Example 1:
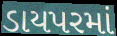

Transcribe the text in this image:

ડાયપરમાં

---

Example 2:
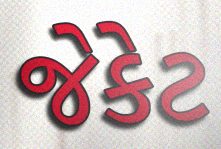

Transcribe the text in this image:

જેકેટ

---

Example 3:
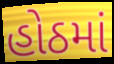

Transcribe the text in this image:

હોઠમાં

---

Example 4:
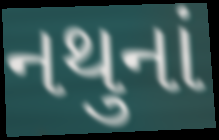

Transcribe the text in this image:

નથુનાં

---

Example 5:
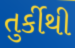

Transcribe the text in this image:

તુર્કીથી